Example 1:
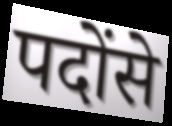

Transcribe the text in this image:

पदोंसे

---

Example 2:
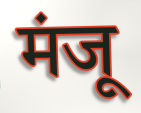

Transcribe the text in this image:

मंजू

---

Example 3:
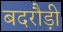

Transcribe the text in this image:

बदरौड़ी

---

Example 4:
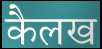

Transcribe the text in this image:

कैलख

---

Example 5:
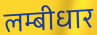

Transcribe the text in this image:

लम्बीधार